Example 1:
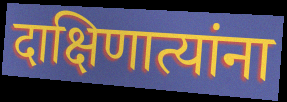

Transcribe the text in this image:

दाक्षिणात्यांना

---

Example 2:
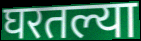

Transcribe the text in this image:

घरतल्या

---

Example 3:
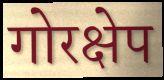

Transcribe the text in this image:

गोरक्षेप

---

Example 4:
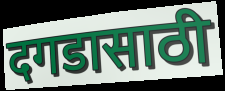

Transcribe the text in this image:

दगडासाठी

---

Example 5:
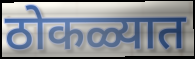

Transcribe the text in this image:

ठोकळ्यात